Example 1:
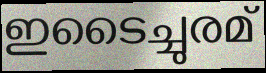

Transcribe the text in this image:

ഇടൈച്ചുരമ്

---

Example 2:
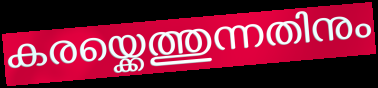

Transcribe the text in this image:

കരയ്ക്കെത്തുന്നതിനും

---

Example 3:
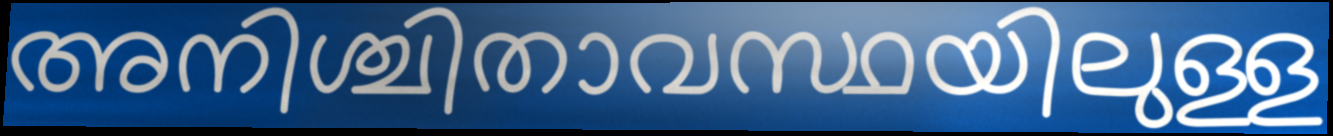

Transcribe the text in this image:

അനിശ്ചിതാവസ്ഥയിലുള്ള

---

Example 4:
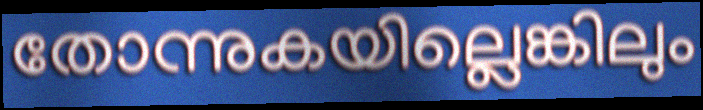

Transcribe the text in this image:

തോന്നുകയില്ലെങ്കിലും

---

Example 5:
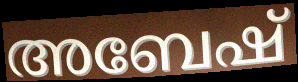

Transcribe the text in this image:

അബേഷ്